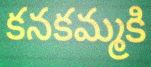
కనకమ్మకి